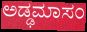
ಅಡ್ಢಮಾಸಂ